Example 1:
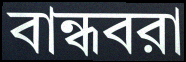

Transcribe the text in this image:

বান্ধবরা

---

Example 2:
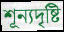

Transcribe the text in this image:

শূন্যদৃষ্টি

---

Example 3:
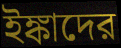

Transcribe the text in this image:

ইঙ্কাদের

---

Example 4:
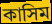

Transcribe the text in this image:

কাসিম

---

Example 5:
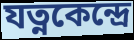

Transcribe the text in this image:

যত্নকেন্দ্রে